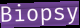
Biopsy